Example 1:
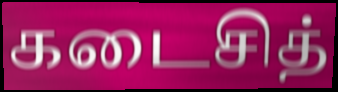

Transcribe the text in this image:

கடைசித்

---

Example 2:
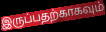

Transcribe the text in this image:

இருப்பதற்காகவும்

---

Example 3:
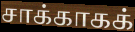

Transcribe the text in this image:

சாக்காகக்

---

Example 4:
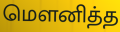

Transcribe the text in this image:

மௌனித்த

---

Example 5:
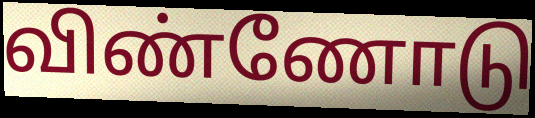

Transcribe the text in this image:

விண்ணோடு